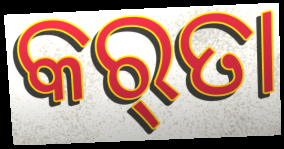
କର୍‌ତା